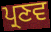
ਪ੍ਰਣਵ